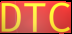
DTC